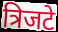
त्रिजटे